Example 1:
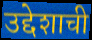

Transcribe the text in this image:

उद्देशाची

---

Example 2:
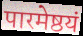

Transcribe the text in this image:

पारमेष्ठयं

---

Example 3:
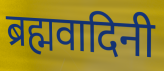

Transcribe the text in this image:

ब्रह्मवादिनी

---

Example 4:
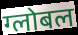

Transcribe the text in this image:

ग्लोबल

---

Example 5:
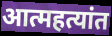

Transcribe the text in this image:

आत्महत्यांत